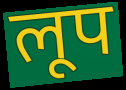
लूप